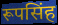
रूपसिंह